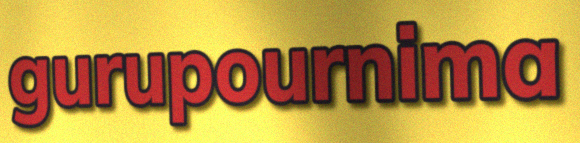
gurupournima